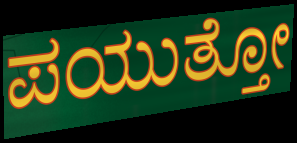
ಪಯುತ್ತೋ